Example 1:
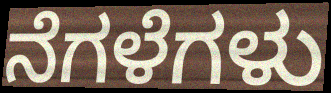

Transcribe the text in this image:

ನೆಗಳೆಗಳು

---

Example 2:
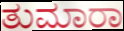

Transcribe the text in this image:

ತುಮಾರಾ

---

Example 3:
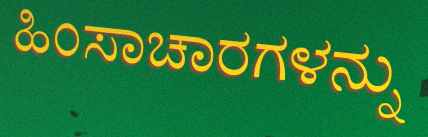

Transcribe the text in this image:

ಹಿಂಸಾಚಾರಗಳನ್ನು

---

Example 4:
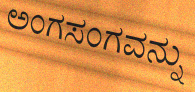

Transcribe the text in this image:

ಅಂಗಸಂಗವನ್ನು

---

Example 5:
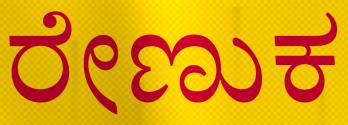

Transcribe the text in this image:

ರೇಣುಕ